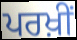
ਪਰਖ਼ੀਂ